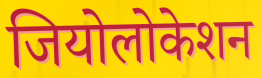
जियोलोकेशन